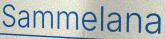
Sammelana